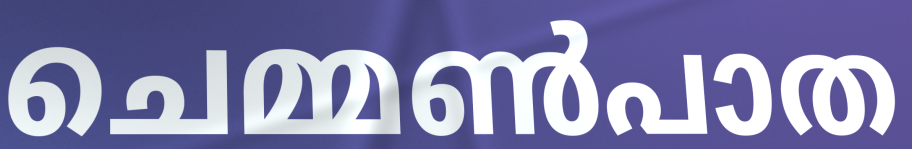
ചെമ്മൺപാത